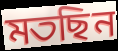
মতছিন